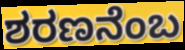
ಶರಣನೆಂಬ